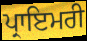
ਪ੍ਰਾਇਮਰੀ